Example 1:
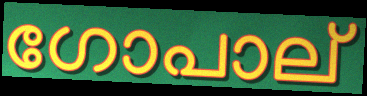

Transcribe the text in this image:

ഗോപാല്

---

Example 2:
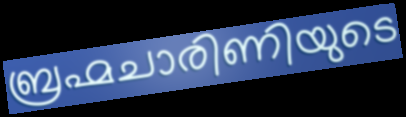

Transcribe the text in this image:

ബ്രഹ്മചാരിണിയുടെ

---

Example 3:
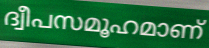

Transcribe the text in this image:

ദ്വീപസമൂഹമാണ്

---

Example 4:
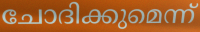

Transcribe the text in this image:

ചോദിക്കുമെന്ന്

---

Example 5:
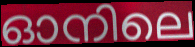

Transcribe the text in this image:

ഓനിലെ